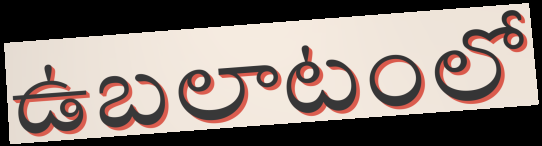
ఉబలాటంలో